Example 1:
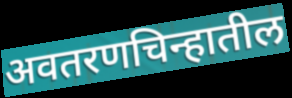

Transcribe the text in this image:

अवतरणचिन्हातील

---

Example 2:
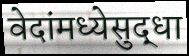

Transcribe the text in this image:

वेदांमध्येसुद्धा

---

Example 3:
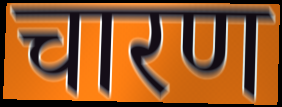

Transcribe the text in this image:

चारण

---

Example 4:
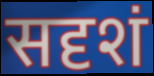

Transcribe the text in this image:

सदृशं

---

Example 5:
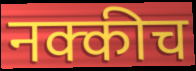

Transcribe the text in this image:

नक्‍कीच